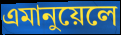
এমানুয়েলে